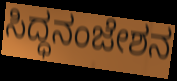
ಸಿದ್ಧನಂಜೇಶನ